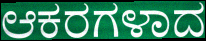
ಆಕರಗಳಾದ